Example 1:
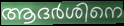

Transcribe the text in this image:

ആദർശിനെ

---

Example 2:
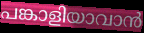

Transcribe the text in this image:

പങ്കാളിയാവാൻ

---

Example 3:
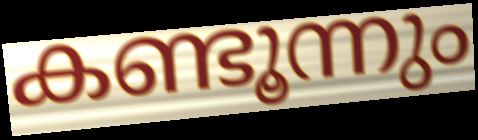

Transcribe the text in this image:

കണ്ടൂന്നും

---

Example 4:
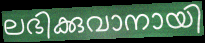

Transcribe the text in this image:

ലഭിക്കുവാനായി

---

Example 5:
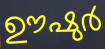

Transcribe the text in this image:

ഊഷുർ